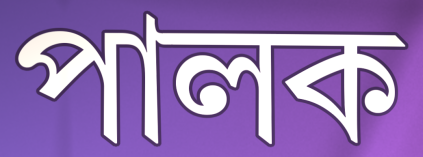
পালক